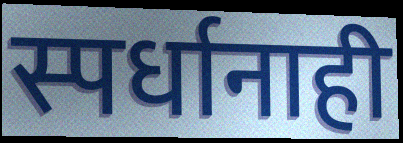
स्पर्धानाही